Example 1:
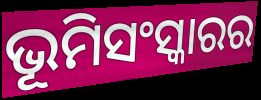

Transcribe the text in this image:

ଭୂମିସଂସ୍କାରର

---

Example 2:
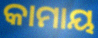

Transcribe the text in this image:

କାମାୟ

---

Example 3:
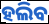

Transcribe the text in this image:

ହଲିବ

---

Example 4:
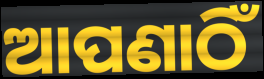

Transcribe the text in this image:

ଆପଣାଠିଁ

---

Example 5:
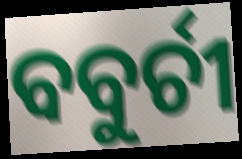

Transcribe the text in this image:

ବବୁର୍ଚୀ